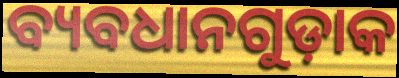
ବ୍ୟବଧାନଗୁଡ଼ାକ